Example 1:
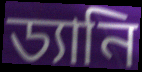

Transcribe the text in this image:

ড্যানি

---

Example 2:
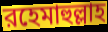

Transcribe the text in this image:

রহেমাহুল্লাহ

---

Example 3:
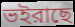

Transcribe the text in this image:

ভইরাছে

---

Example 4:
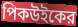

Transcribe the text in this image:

পিকউইকের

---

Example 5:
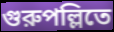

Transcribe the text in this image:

গুরুপল্লিতে